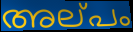
അല്‌പം